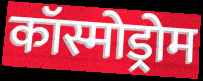
कॉस्मोड्रोम